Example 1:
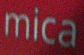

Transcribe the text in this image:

mica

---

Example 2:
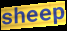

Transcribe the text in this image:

sheep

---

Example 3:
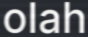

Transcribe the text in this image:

olah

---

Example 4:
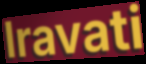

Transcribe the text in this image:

Iravati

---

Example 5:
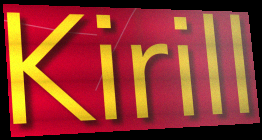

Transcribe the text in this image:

Kirill